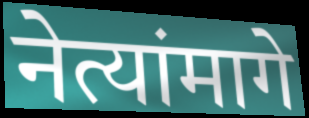
नेत्यांमागे